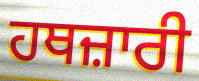
ਹਥਜ਼ਾਰੀ